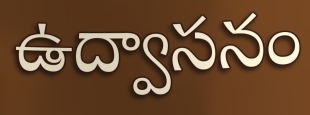
ఉద్వాసనం